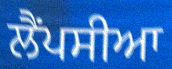
ਲੈਂਪਸੀਆ